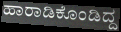
ಹಾರಾಡಿಕೊಂಡಿದ್ದ